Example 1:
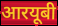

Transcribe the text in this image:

आरयूबी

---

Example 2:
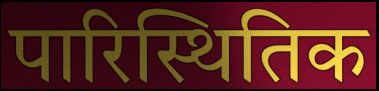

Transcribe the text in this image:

पारिस्थितिक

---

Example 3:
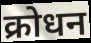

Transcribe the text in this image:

क्रोधन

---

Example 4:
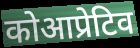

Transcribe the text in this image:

कोआप्रेटिव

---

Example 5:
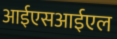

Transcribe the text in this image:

आईएसआईएल